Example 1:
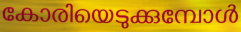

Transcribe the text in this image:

കോരിയെടുക്കുമ്പോൾ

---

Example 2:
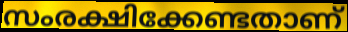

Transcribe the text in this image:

സംരക്ഷിക്കേണ്ടതാണ്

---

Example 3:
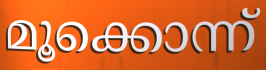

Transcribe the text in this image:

മൂക്കൊന്ന്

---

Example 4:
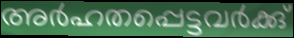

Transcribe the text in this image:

അർഹതപ്പെട്ടവർക്കു്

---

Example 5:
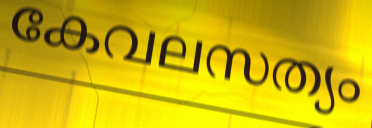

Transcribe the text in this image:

കേവലസത്യം